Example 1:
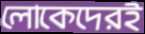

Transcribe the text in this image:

লোকেদেরই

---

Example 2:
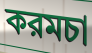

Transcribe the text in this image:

করমচা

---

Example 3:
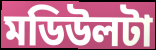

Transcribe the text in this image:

মডিউলটা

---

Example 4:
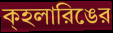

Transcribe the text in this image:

ক্হলারিঙের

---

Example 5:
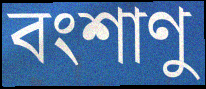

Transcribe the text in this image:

বংশাণু